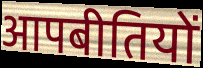
आपबीतियों